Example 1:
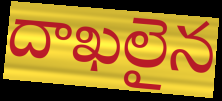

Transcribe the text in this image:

దాఖలైన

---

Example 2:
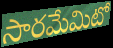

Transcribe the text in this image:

సారమేమిటో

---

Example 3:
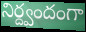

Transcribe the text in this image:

నిర్ద్వందంగా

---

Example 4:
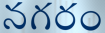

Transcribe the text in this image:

నగరం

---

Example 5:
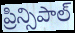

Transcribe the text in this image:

ప్రిన్సిపాల్